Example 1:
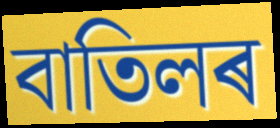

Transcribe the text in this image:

বাতিলৰ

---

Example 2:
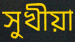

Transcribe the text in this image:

সুখীয়া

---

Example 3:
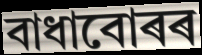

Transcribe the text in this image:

বাধাবোৰৰ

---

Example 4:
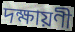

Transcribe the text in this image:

দক্ষায়ণী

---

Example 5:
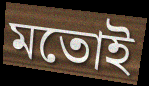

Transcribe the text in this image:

মতোই